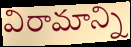
విరామాన్ని